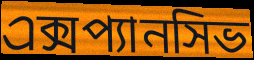
এক্সপ্যানসিভ